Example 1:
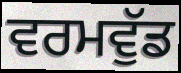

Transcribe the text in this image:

ਵਰਮਵੁੱਡ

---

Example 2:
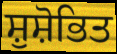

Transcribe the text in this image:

ਸ਼ੁਸ਼ੋਭਿਤ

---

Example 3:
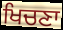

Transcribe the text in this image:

ਖਿਚਣਾ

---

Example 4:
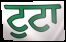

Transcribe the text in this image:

ਟੁਟਾ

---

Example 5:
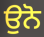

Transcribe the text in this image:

ਉਨੋ